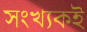
সংখ্যকই